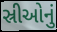
સ્રીઓનું